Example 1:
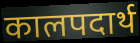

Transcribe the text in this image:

कालपदार्थ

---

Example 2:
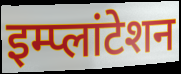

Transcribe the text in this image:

इम्प्लांटेशन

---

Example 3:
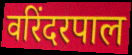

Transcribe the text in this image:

वरिंदरपाल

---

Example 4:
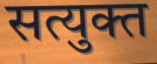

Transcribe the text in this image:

सत्युक्त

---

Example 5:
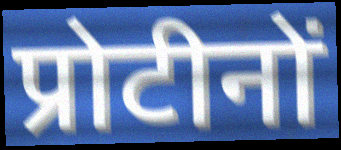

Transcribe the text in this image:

प्रोटीनों